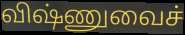
விஷ்ணுவைச்